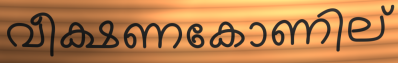
വീക്ഷണകോണില്